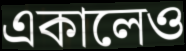
একালেও